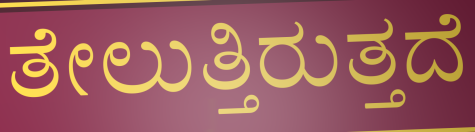
ತೇಲುತ್ತಿರುತ್ತದೆ